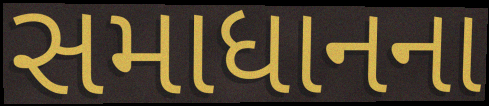
સમાધાનના